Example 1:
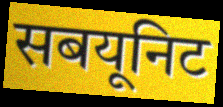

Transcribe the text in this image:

सबयूनिट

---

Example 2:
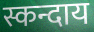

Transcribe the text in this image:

स्कन्दाय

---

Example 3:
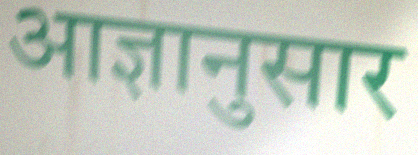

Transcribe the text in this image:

आज्ञानुसार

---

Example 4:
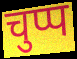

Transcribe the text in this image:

चुप्प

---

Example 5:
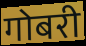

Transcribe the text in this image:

गोबरी